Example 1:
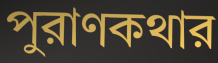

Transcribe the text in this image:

পুরাণকথার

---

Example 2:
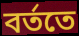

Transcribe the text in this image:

বর্ততে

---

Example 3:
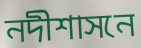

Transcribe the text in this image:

নদীশাসনে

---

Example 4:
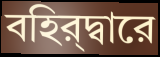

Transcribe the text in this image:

বহির্‌দ্বারে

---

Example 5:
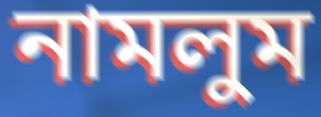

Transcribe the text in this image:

নামলুম